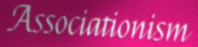
Associationism